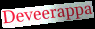
Deveerappa